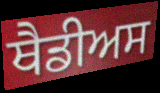
ਥੈਡੀਅਸ